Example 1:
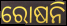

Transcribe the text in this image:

ରୋଷନି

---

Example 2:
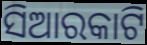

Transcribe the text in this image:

ସିଆରକାଟି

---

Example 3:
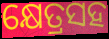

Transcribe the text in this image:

କ୍ଷେତ୍ରସହ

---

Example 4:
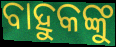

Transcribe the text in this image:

ବାହୁକଙ୍କୁ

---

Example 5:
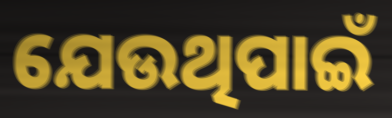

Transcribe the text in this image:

ଯେଉଥିପାଇଁ